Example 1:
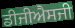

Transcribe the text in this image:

ਡੀਜੀਐਸਜੀ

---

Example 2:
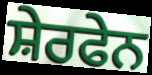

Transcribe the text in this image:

ਸ਼ੇਰਫੇਨ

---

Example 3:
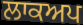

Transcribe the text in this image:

ਲਾਕਅਪ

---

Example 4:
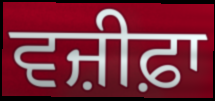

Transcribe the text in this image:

ਵਜ਼ੀਫ਼ਾ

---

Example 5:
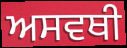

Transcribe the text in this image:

ਅਸਵਥੀ